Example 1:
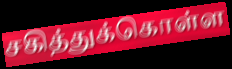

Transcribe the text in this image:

சகித்துக்கொள்ள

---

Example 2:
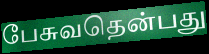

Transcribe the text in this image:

பேசுவதென்பது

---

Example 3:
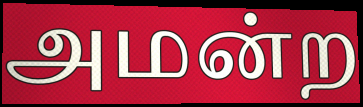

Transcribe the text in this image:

அமன்ற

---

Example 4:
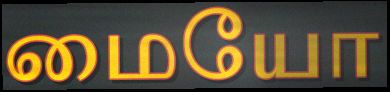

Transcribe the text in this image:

மையோ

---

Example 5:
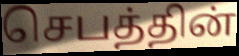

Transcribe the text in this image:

செபத்தின்